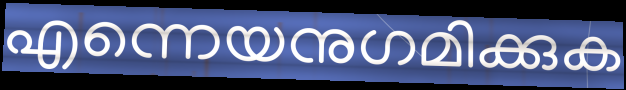
എന്നെയനുഗമിക്കുക